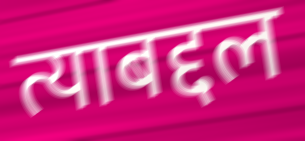
त्याबद्दल